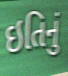
ઇતિનું